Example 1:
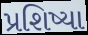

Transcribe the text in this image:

પ્રશિષ્યા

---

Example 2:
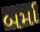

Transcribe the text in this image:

બર્મા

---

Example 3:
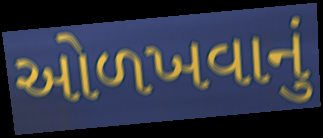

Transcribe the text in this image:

ઓળખવાનું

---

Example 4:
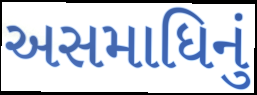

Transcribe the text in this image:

અસમાધિનું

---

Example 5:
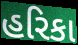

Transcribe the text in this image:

હરિકા